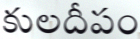
కులదీపం